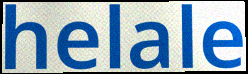
helale